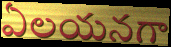
ఏలయనగా